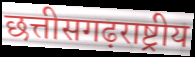
छत्तीसगढ़राष्ट्रीय